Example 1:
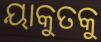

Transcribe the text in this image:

ୟାକୁତକୁ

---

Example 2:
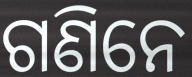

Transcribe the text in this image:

ଗଣିନେ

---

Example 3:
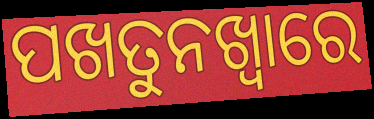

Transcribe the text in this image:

ପଖତୁନଖ୍ୱାରେ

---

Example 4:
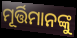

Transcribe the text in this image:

ମୂର୍ତ୍ତିମାନଙ୍କୁ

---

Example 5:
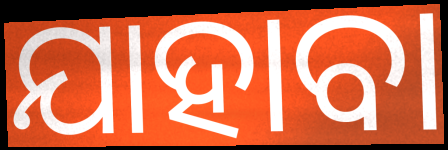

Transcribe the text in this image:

ଯାହାବା